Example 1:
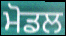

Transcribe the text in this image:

ਮੋਡਲ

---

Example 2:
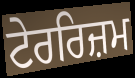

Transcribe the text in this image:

ਟੇਰਰਿਜ਼ਮ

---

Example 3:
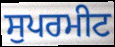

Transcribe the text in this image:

ਸੁਪਰਮੀਟ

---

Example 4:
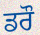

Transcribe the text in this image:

ਡਰੌ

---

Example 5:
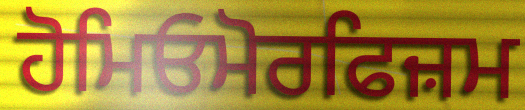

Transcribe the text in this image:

ਹੋਮਿਓਮੋਰਫਿਜ਼ਮ